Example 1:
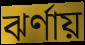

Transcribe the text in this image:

ঝর্ণায়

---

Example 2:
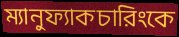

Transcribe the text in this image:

ম্যানুফ্যাকচারিংকে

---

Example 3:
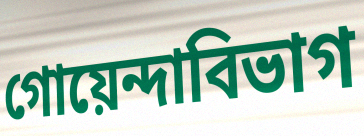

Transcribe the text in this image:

গোয়েন্দাবিভাগ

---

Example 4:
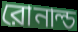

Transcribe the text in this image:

রোনাল্ড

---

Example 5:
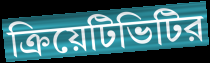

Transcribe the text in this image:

ক্রিয়েটিভিটির